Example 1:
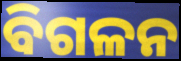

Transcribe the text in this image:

ବିଗଳନ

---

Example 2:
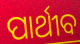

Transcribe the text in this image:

ପାର୍ଥୀବ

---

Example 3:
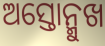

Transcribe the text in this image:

ଅସ୍ତୋନ୍ମୁଖ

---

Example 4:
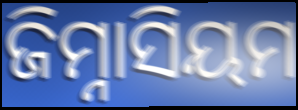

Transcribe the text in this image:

ଜିମ୍ନାସିୟମ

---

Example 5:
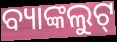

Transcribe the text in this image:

ବ୍ୟାଙ୍କଲୁଟ୍